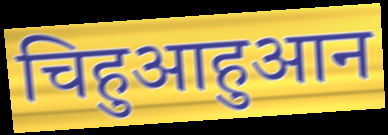
चिहुआहुआन